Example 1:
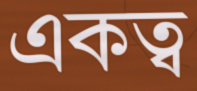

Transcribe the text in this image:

একত্ব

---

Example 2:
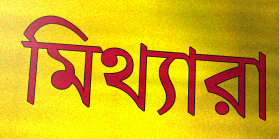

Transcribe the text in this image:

মিথ্যারা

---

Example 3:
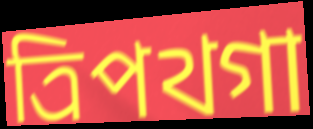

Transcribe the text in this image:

ত্রিপথগা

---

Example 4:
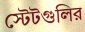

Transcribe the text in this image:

স্টেটগুলির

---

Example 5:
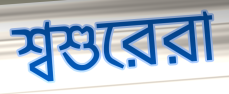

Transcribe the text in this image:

শ্বশুরেরা